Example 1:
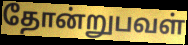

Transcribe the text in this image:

தோன்றுபவள்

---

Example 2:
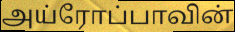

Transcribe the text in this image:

அய்ரோப்பாவின்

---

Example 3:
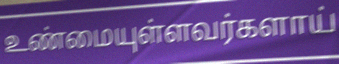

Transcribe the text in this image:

உண்மையுள்ளவர்களாய்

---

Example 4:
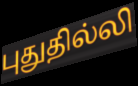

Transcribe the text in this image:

புதுதில்லி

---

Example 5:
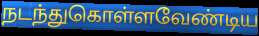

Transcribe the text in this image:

நடந்துகொள்ளவேண்டிய